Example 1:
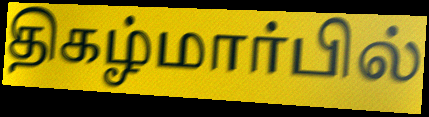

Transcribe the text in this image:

திகழ்மார்பில்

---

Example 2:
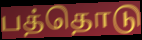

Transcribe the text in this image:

பத்தொடு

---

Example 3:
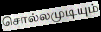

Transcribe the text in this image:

சொல்லமுடியும்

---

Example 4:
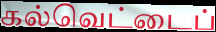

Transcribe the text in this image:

கல்வெட்டைப்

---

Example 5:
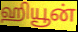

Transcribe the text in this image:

ஹியூன்